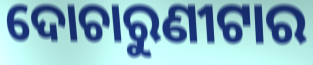
ଦୋଚାରୁଣୀଟାର